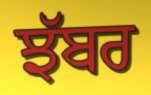
ਝੱਬਰ